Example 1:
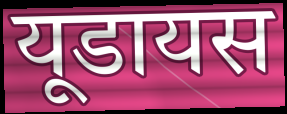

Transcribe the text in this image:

यूडायस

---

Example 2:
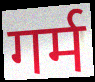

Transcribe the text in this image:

गर्म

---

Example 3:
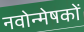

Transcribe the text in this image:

नवोन्मेषकों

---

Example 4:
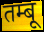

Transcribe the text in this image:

तम्बू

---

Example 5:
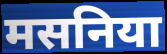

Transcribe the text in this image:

मसनिया